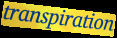
transpiration